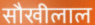
सौखीलाल